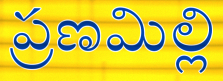
ప్రణమిల్లి